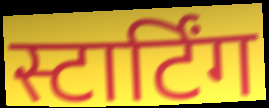
स्टार्टिंग